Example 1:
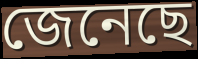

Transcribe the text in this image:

জেনেছে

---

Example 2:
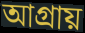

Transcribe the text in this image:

আগ্রায়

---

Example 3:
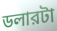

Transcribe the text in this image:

ডলারটা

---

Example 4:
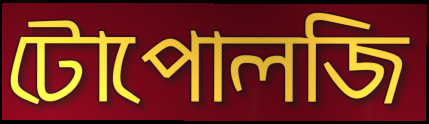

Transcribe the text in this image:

টোপোলজি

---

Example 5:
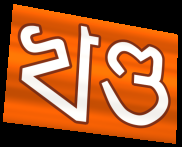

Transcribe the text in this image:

খণ্ড